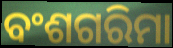
ବଂଶଗରିମା